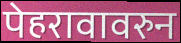
पेहरावावरुन